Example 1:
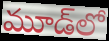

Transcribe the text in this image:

మూడ్‌లో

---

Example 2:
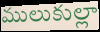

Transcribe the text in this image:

ములుకుల్లా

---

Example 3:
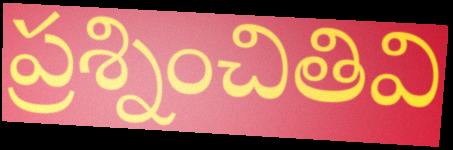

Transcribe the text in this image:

ప్రశ్నించితివి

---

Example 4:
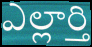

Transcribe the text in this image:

ఎల్లార్తి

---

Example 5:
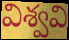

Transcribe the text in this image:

విశ్వవి